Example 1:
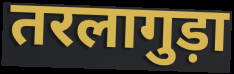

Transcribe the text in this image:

तरलागुड़ा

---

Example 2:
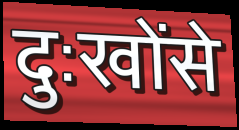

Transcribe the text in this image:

दुःखोंसे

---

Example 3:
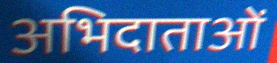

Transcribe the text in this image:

अभिदाताओं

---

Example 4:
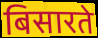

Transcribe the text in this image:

बिसारते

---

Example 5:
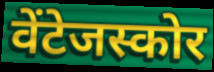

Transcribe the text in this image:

वेंटेजस्कोर